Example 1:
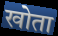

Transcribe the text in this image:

खोता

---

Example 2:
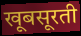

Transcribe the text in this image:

खूबसूरती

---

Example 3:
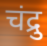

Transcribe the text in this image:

चंद्रु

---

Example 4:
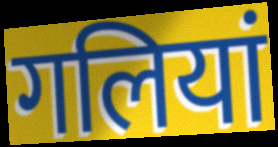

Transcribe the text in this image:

गलियां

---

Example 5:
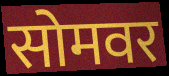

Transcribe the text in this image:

सोमवर